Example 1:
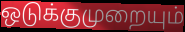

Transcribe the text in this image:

ஒடுக்குமுறையும்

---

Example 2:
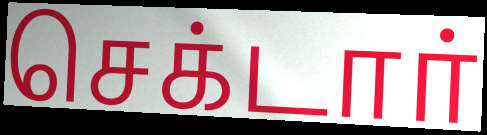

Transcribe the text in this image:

செக்டார்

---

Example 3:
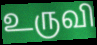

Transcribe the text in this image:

உருவி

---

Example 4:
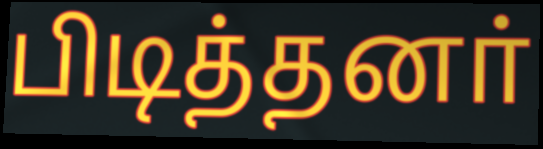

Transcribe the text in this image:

பிடித்தனர்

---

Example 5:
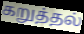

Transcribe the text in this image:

கறுத்தல்